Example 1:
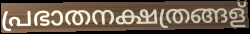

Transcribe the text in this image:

പ്രഭാതനക്ഷത്രങ്ങള്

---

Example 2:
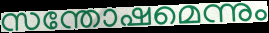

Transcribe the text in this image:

സന്തോഷമെന്നും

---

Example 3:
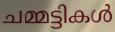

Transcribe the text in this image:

ചമ്മട്ടികൾ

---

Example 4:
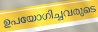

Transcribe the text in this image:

ഉപയോഗിച്ചവരുടെ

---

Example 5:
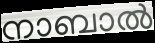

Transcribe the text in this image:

നാബാൽ